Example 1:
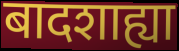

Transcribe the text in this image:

बादशाह्या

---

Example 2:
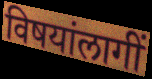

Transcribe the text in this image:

विषयांलागीं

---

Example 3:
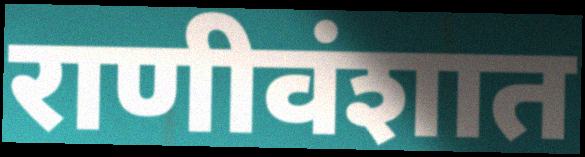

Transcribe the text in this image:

राणीवंशात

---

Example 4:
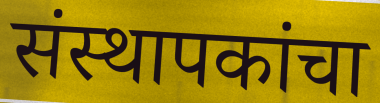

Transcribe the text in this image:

संस्थापकांचा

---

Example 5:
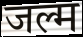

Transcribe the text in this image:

जल्म